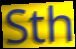
Sth